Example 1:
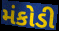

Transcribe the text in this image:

મંકોડી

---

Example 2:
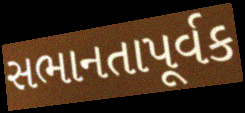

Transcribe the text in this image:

સભાનતાપૂર્વક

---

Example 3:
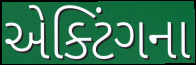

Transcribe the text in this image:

એક્ટિંગના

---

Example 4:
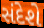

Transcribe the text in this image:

સંદેશે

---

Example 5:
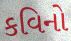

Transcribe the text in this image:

કવિનો